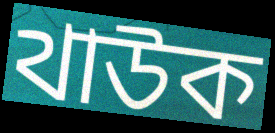
থাউক